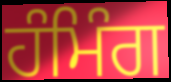
ਹੰਮਿੰਗ